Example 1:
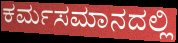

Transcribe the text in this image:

ಕರ್ಮಸಮಾನದಲ್ಲಿ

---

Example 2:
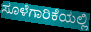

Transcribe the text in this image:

ಸೂಳೆಗಾರಿಕೆಯಲ್ಲಿ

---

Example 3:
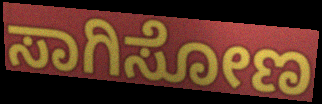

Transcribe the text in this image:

ಸಾಗಿಸೋಣ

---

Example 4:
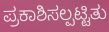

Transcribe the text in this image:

ಪ್ರಕಾಶಿಸಲ್ಪಟ್ಟಿತು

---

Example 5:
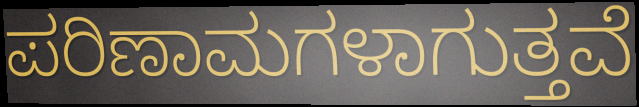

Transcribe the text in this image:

ಪರಿಣಾಮಗಳಾಗುತ್ತವೆ